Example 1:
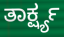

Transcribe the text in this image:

ತಾರ್ಕ್ಷ್ಯ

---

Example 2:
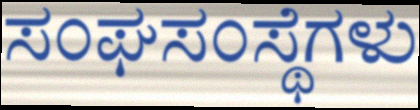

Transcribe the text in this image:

ಸಂಘಸಂಸ್ಥೆಗಳು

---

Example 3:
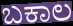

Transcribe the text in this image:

ಬಕಾಲ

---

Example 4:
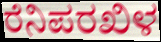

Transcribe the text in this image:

ರೆನಿಪರಖಿಳ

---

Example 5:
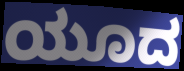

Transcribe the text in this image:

ಯೂದ